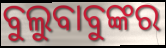
ବୁଲୁବାବୁଙ୍କର